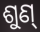
ଶୁଣ୍